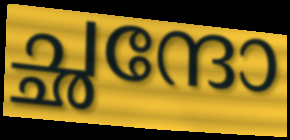
ച്ഛന്ദോ